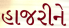
હાજરીને